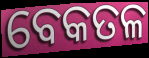
ବେକତଳ